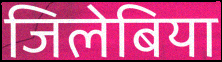
जिलेबिया